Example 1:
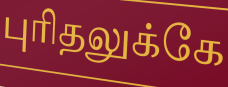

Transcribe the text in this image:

புரிதலுக்கே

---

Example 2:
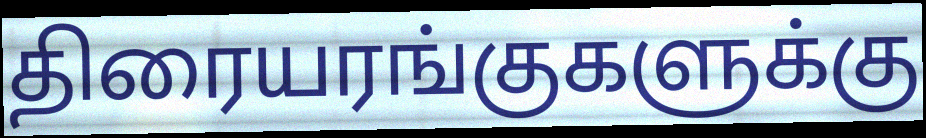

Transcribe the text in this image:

திரையரங்குகளுக்கு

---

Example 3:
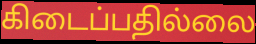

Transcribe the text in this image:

கிடைப்பதில்லை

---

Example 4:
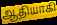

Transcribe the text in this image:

ஆதியாகி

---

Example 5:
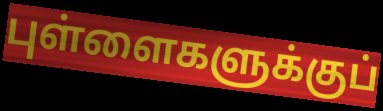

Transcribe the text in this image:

புள்ளைகளுக்குப்